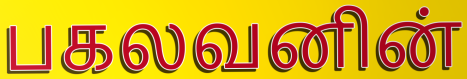
பகலவனின்